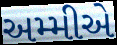
અમ્મીએ